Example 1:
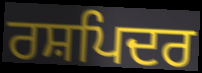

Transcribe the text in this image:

ਰਸ਼ਪਿਦਰ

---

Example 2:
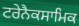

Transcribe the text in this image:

ਟਰੇਨੈਕਸਾਮਿਕ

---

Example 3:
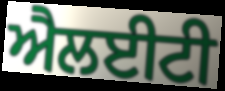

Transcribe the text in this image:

ਐਲਈਟੀ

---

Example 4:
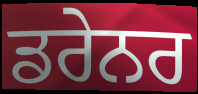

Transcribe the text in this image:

ਡਰੇਨਰ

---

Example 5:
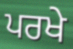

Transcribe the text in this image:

ਪਰਖੇ